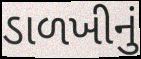
ડાળખીનું